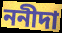
ননীদা